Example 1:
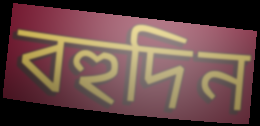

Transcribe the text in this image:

বহুদিন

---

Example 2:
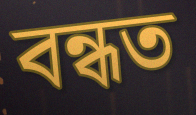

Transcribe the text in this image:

বন্ধত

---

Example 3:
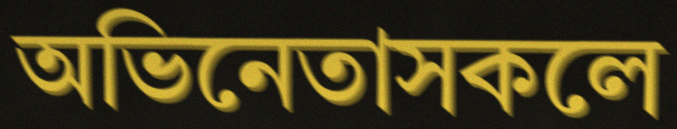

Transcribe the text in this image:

অভিনেতাসকলে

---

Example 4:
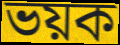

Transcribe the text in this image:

ভয়ক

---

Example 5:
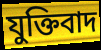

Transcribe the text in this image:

যুক্তিবাদ